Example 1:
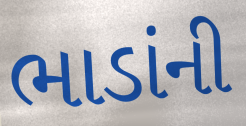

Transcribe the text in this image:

ભાડાંની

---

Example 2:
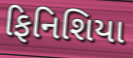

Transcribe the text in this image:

ફિનિશિયા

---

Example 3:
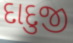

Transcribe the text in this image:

દાદુજી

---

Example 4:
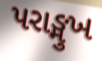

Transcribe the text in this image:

પરાઙ્મુખ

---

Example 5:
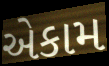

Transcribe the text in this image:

એકામ